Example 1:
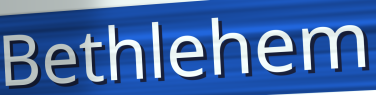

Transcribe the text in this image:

Bethlehem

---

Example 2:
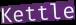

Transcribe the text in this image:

Kettle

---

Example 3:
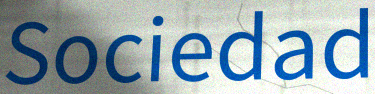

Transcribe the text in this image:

Sociedad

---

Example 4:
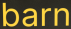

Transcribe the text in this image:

barn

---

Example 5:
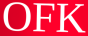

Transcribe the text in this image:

OFK